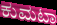
ಕುಮಟಾ